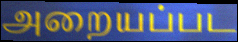
அறையப்பட